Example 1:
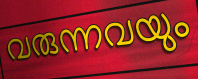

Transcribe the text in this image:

വരുന്നവയും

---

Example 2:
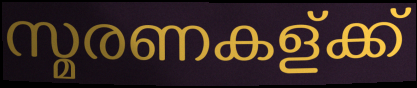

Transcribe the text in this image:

സ്മരണകള്ക്ക്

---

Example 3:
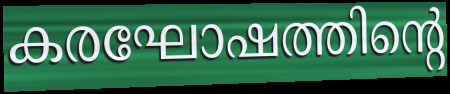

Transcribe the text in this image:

കരഘോഷത്തിന്റെ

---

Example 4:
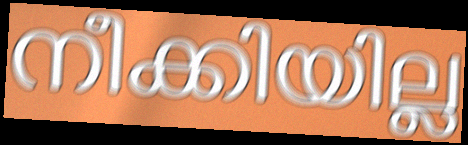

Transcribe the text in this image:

നീക്കിയില്ല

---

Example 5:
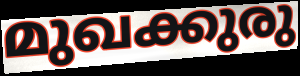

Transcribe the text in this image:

മുഖക്കുരു